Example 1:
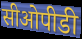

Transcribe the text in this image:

सीओपीडी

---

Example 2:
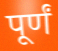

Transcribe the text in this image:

पूर्णं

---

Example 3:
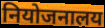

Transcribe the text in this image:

नियोजनालय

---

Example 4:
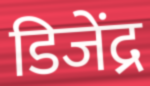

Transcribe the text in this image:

डिजेंद्र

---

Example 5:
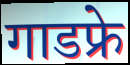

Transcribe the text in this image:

गाडफ्रे